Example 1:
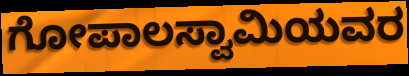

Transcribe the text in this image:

ಗೋಪಾಲಸ್ವಾಮಿಯವರ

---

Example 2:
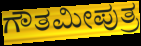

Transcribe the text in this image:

ಗೌತಮೀಪುತ್ರ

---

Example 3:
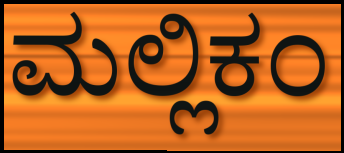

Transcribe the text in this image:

ಮಲ್ಲಿಕಂ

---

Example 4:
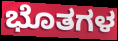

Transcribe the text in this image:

ಭೊತಗಳ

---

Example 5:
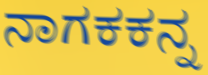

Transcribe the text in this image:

ನಾಗಕಕನ್ನ